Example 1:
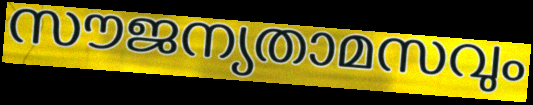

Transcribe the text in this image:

സൗജന്യതാമസവും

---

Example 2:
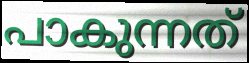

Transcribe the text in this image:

പാകുന്നത്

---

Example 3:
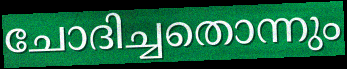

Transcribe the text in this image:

ചോദിച്ചതൊന്നും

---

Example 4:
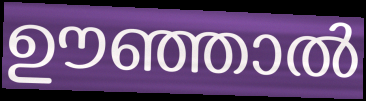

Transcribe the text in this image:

ഊഞ്ഞാൽ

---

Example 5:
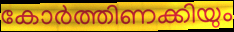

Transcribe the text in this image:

കോർത്തിണക്കിയും